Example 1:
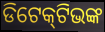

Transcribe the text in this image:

ଡିଟେକ୍‌ଟିଭଙ୍କ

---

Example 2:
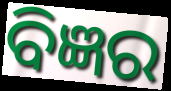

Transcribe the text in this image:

ବିଜ୍ଞର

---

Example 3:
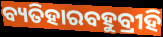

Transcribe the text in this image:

ବ୍ୟତିହାରବହୁବ୍ରୀହି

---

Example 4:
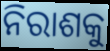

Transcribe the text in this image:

ନିରାଶକୁ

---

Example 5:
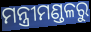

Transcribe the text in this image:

ମନ୍ତ୍ରୀମଣ୍ଡଳରୁ